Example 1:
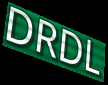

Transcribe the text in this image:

DRDL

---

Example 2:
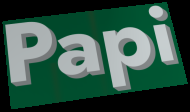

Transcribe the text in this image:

Papi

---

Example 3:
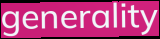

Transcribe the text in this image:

generality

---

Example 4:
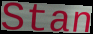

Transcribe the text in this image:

Stan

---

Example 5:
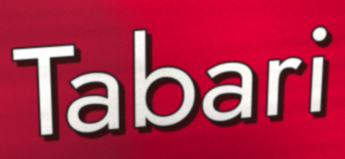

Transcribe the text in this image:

Tabari